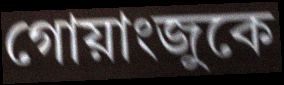
গোয়াংজুকে